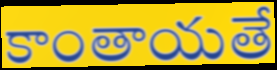
కాంతాయతే